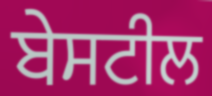
ਬੇਸਟੀਲ